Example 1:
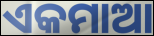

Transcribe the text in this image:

ଏକମାଆ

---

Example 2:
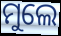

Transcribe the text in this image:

ମୁଲେ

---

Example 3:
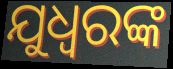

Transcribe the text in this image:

ଯୁଧ୍ଵରଙ୍କ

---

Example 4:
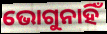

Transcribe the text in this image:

ଭୋଗୁନାହିଁ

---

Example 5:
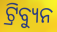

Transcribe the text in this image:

ଟ୍ରିବ୍ୟୁନ